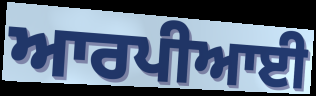
ਆਰਪੀਆਈ